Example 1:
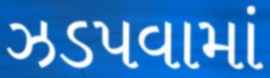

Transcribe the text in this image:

ઝડપવામાં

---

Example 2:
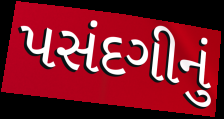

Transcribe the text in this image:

પસંદગીનું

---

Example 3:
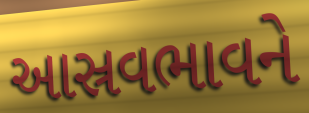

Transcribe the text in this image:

આસ્રવભાવને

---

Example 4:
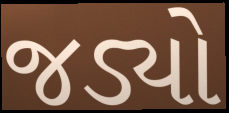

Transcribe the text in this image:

જડ્યો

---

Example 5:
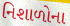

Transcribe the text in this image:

નિશાળોના